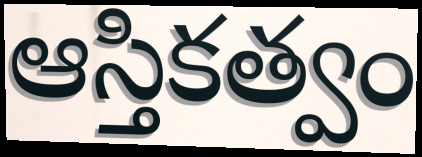
ఆస్తికత్వం